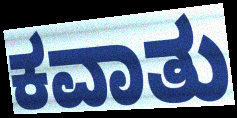
ಕವಾತು